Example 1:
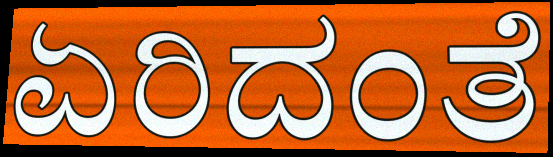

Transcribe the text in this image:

ಏರಿದಂತೆ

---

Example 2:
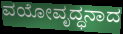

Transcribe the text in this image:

ವಯೋವೃದ್ಧನಾದ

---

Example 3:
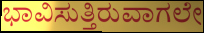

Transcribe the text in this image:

ಭಾವಿಸುತ್ತಿರುವಾಗಲೇ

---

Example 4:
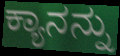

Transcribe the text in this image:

ಕ್ಯಾನನ್ನು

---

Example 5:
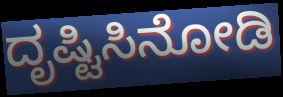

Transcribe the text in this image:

ದೃಷ್ಟಿಸಿನೋಡಿ